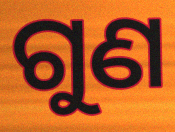
ଗୁଣ